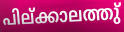
പില്ക്കാലത്തു്